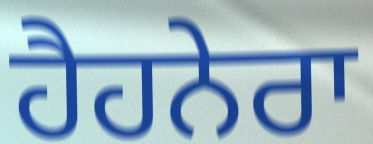
ਹੈਹਨੇਰਾ